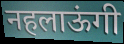
नहलाऊंगी